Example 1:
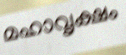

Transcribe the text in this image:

മഹാവൃക്ഷം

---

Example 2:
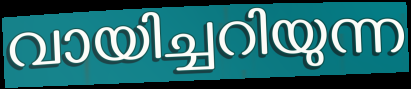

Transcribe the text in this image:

വായിച്ചറിയുന്ന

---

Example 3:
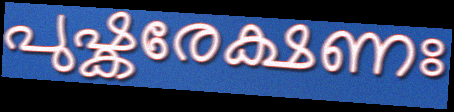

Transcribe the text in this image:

പുഷ്കരേക്ഷണഃ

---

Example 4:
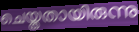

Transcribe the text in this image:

ചെയ്തതായിരുന്നു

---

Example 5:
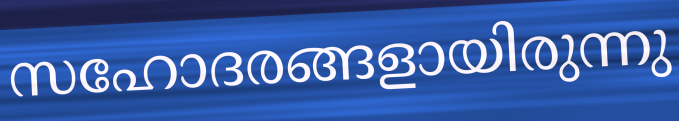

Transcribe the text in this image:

സഹോദരങ്ങളായിരുന്നു